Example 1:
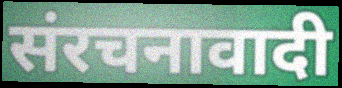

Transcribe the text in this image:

संरचनावादी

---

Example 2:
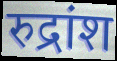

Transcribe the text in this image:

रुद्रांश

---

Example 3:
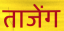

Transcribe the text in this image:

ताजेंग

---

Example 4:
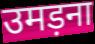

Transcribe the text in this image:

उमड़ना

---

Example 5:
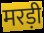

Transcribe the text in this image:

मरड़ी